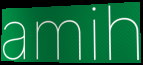
amih